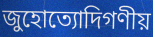
জুহোত্যোদিগণীয়